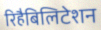
रिहैबिलिटेशन